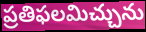
ప్రతిఫలమిచ్చును